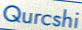
Qurcshi